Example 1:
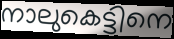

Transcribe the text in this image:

നാലുകെട്ടിനെ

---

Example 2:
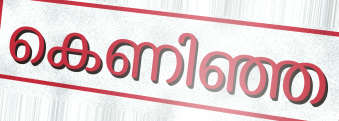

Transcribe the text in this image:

കെണിഞ്ഞ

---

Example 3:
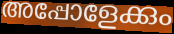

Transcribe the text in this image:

അപ്പോളേക്കും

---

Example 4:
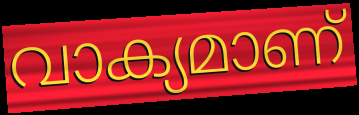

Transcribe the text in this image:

വാക്യമാണ്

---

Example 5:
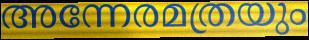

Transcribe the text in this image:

അന്നേരമത്രയും